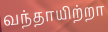
வந்தாயிற்றா